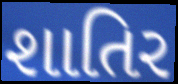
શાતિર